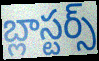
బ్లాస్టర్స్